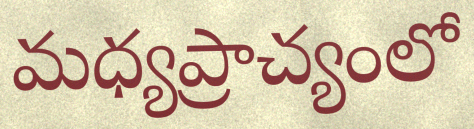
మధ్యప్రాచ్యంలో